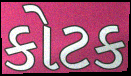
કોટક